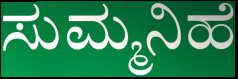
ಸುಮ್ಮನಿಹೆ